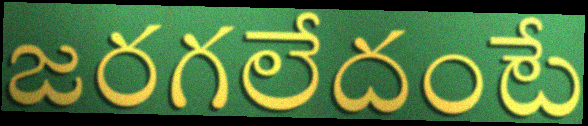
జరగలేదంటే